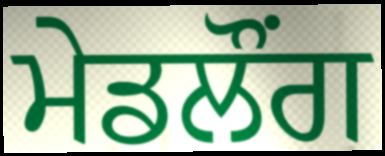
ਮੇਡਲੌਂਗ